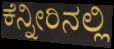
ಕೆನ್ನೀರಿನಲ್ಲಿ